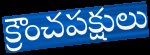
క్రౌంచపక్షులు